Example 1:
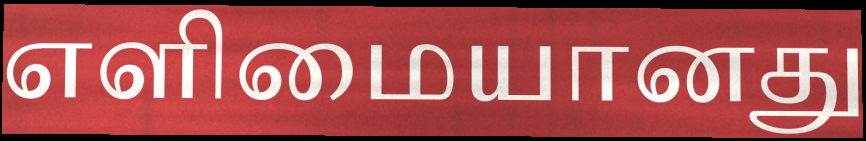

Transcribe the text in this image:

எளிமையானது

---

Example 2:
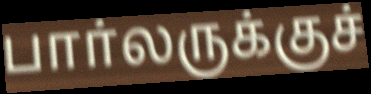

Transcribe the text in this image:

பார்லருக்குச்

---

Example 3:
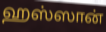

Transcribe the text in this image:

ஹஸ்ஸான்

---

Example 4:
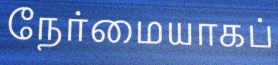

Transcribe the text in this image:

நேர்மையாகப்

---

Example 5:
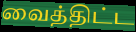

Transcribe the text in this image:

வைத்திட்ட